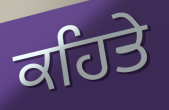
ਕਹਿਤੇ